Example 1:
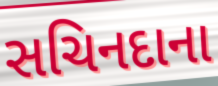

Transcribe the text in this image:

સચિનદાના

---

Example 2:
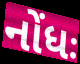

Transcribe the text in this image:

નોંધઃ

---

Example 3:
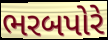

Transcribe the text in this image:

ભરબપોરે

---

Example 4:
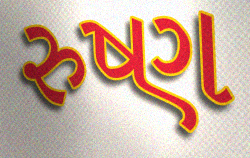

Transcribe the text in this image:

રુષ્ણ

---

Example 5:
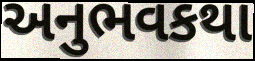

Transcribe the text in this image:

અનુભવકથા